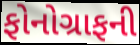
ફોનોગ્રાફની